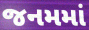
જનમમાં